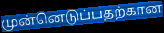
முன்னெடுப்பதற்கான